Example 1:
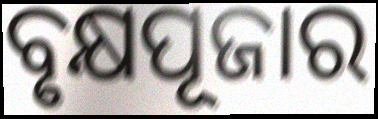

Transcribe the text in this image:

ବୃକ୍ଷପୂଜାର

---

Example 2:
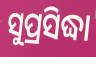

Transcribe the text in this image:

ସୁପ୍ରସିଦ୍ଧା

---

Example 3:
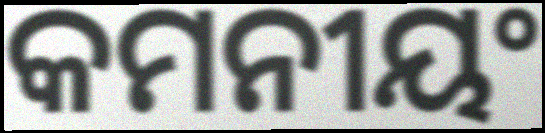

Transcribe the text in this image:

କମନୀୟଂ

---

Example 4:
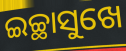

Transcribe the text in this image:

ଇଚ୍ଛାସୁଖେ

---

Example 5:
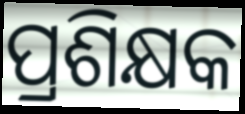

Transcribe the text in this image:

ପ୍ରଶିକ୍ଷକ